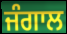
ਜੰਗਾਲ